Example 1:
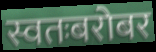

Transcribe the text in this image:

स्वतःबरोबर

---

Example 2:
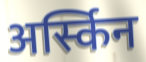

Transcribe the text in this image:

अर्स्किन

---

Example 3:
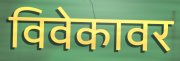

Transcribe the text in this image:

विवेकावर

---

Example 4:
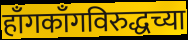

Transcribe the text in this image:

हाँगकाँगविरुद्धच्या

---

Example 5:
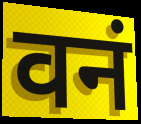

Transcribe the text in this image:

वनं